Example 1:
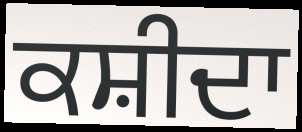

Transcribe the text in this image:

ਕਸ਼ੀਦਾ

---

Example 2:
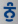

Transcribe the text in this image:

ਨੁੰ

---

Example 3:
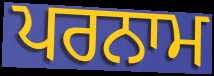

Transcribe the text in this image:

ਪਰਨਾਮ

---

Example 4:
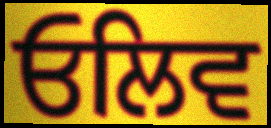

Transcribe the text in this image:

ਓਲਿਵ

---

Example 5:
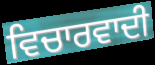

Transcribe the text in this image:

ਵਿਚਾਰਵਾਦੀ